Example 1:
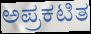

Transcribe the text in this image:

ಅಪ್ರಕಟಿತ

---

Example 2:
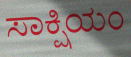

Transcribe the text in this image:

ಸಾಕ್ಷಿಯಂ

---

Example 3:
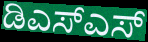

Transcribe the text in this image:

ಡಿಎಸ್ಎಸ್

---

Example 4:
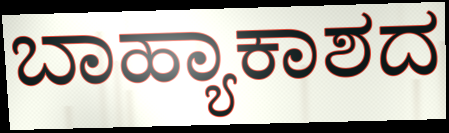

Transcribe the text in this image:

ಬಾಹ್ಯಾಕಾಶದ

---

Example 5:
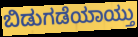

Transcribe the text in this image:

ಬಿಡುಗಡೆಯಾಯ್ತು